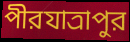
পীরযাত্রাপুর